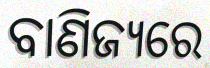
ବାଣିଜ୍ୟରେ